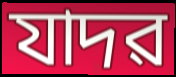
যাদৱ